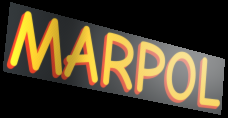
MARPOL